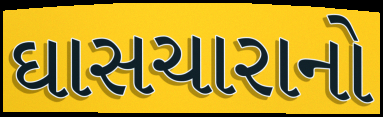
ઘાસચારાનો